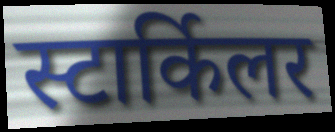
स्टार्किलर